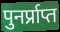
पुनर्प्राप्त